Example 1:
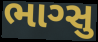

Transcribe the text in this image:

ભાગ્સુ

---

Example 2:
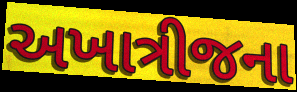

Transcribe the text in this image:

અખાત્રીજના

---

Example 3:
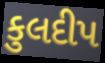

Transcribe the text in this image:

કુલદીપ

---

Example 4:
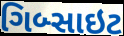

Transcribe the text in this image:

ગિબ્સાઇટ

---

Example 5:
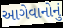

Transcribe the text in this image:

આગેવાનોનું